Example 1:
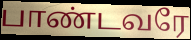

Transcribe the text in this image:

பாண்டவரே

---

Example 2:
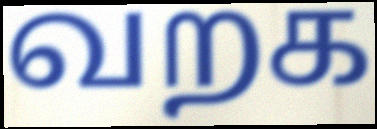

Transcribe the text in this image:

வறக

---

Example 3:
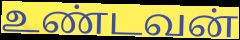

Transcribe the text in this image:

உண்டவன்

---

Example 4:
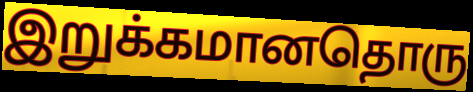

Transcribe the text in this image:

இறுக்கமானதொரு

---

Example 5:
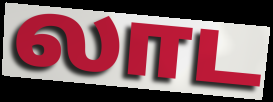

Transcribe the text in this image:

லாட